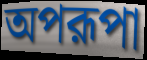
অপরূপা